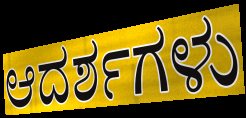
ಆದರ್ಶಗಳು